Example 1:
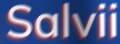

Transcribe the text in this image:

Salvii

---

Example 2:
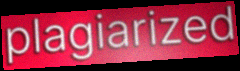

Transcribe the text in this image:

plagiarized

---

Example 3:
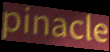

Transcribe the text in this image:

pinacle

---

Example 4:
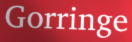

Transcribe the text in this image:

Gorringe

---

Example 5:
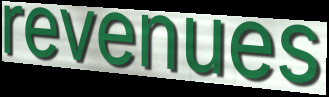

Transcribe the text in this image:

revenues